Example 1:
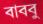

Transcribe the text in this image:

বাববু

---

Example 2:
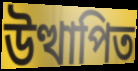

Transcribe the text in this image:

উত্থাপিত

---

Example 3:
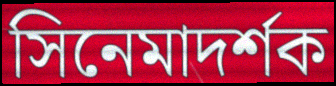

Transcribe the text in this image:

সিনেমাদর্শক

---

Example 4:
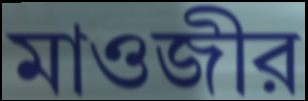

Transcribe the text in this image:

মাওজীর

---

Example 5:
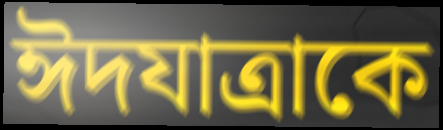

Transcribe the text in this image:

ঈদযাত্রাকে